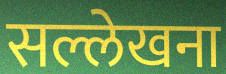
सल्लेखना